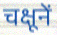
चक्षूनें